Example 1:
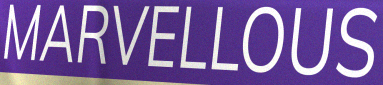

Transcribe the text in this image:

MARVELLOUS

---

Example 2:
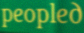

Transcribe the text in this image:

peopled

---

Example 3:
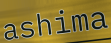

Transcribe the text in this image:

ashima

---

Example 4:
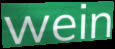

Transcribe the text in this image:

wein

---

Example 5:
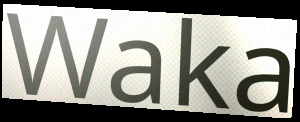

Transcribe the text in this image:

Waka